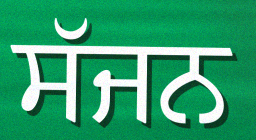
ਸੱਜਨ